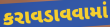
કરાવડાવવામાં